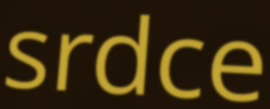
srdce